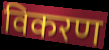
विकरण